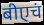
बीएचं